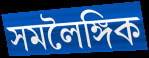
সমলৈঙ্গিক